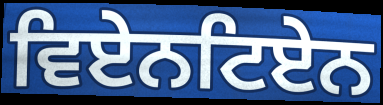
ਵਿਏਨਟਿਏਨ